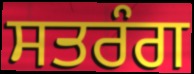
ਸਤਰੰਗ